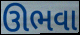
ઊભવા